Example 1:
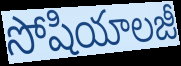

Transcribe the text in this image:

సోషియాలజీ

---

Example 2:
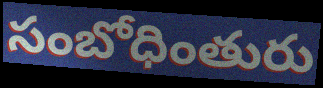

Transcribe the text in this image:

సంబోధింతురు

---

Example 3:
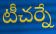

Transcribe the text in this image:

టీచర్నే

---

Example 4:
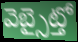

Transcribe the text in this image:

వెబ్సైట్తో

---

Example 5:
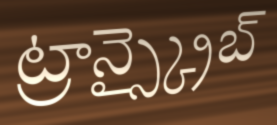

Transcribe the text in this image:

ట్రాన్స్క్రైబ్